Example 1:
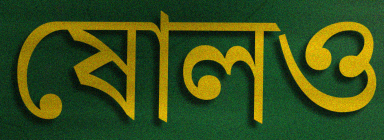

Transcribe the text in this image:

ষোলও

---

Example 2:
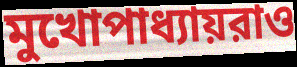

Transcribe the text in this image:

মুখোপাধ্যায়রাও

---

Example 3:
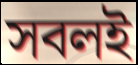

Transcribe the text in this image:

সবলই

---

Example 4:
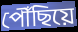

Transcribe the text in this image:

পৌঁছিয়ে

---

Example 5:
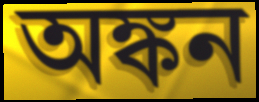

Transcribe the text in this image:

অঙ্কন